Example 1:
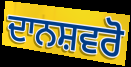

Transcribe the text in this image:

ਦਾਨਸ਼ਵਰੋ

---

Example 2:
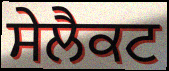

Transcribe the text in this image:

ਸੇਲੈਕਟ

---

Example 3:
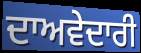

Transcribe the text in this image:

ਦਾਅਵੇਦਾਰੀ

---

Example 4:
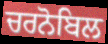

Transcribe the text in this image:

ਚਰਨੋਬਿਲ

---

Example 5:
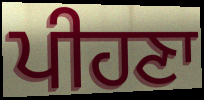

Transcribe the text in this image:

ਪੀਹਣਾ